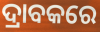
ଦ୍ରାବକରେ